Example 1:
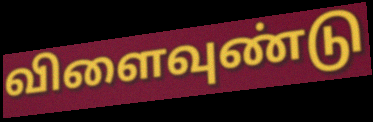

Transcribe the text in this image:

விளைவுண்டு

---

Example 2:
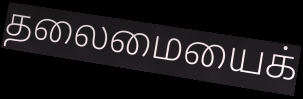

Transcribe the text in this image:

தலைமையைக்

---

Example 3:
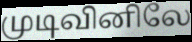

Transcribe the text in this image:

முடிவினிலே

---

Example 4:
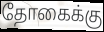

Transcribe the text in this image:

தோகைக்கு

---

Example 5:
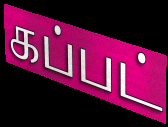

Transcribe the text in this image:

கப்பட்